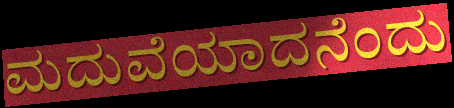
ಮದುವೆಯಾದನೆಂದು